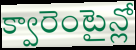
క్వారెంటైన్లో